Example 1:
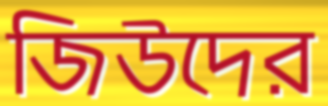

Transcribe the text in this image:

জিউদের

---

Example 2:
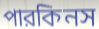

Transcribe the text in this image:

পারকিনস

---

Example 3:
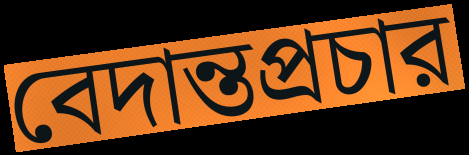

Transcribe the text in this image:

বেদান্তপ্রচার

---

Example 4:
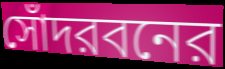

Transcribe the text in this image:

সোঁদরবনের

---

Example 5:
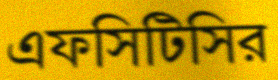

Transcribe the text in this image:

এফসিটিসির